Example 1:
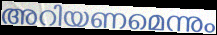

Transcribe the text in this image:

അറിയണമെന്നും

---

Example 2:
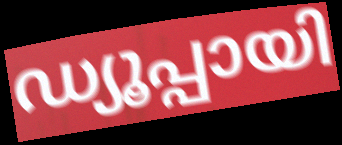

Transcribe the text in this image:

ഡ്യൂപ്പായി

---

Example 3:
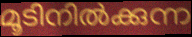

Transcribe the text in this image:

മൂടിനിൽക്കുന്ന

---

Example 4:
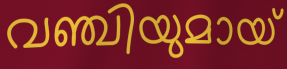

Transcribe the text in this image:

വഞ്ചിയുമായ്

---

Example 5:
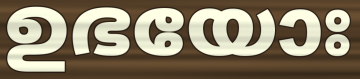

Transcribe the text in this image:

ഉഭയോഃ